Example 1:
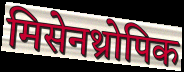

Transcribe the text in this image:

मिसेनथ्रोपिक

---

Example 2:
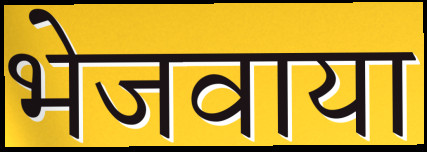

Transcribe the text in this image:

भेजवाया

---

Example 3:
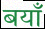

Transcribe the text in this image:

बयाँ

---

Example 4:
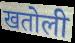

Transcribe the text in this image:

खतोली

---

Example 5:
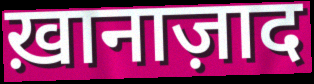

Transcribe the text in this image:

ख़ानाज़ाद